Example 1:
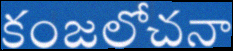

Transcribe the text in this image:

కంజలోచనా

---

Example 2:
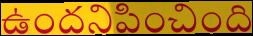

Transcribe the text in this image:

ఉందనిపించింది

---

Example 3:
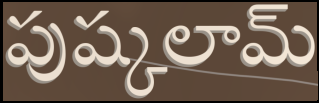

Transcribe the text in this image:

పుష్కలామ్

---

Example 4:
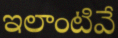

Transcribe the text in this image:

ఇలాంటివే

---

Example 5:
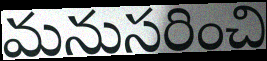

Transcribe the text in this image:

మనుసరించి